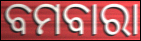
ବମବାରା